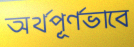
অর্থপূর্ণভাবে